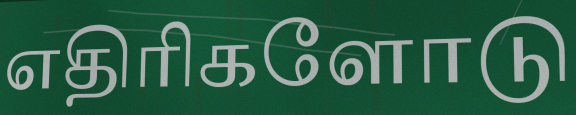
எதிரிகளோடு